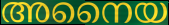
അനൈയ